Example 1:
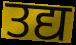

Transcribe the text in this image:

उद्य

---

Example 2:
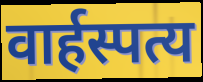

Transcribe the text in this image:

वार्हस्पत्य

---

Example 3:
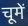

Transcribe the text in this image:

चूमें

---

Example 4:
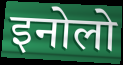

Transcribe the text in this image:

इनोलो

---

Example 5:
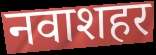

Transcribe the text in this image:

नवाशहर